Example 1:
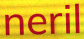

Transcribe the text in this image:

neril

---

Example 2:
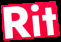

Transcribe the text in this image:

Rit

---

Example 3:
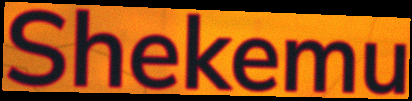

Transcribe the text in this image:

Shekemu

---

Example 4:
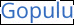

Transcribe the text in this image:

Gopulu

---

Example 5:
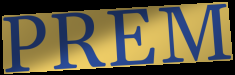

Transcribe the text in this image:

PREM